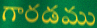
గారడము